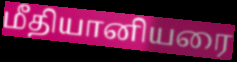
மீதியானியரை